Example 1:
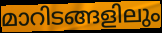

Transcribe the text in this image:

മാറിടങ്ങളിലും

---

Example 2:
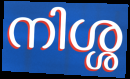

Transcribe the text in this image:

നിശ്ശ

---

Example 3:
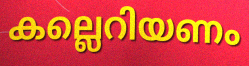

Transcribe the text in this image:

കല്ലെറിയണം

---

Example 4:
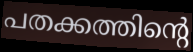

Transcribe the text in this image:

പതക്കത്തിന്റെ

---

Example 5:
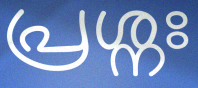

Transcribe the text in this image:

പ്രശ്നഃ